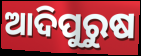
ଆଦିପୁରୁଷ